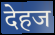
देहज